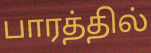
பாரத்தில்